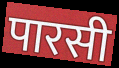
पारसी